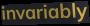
invariably